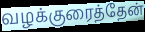
வழக்குரைத்தேன்